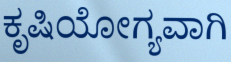
ಕೃಷಿಯೋಗ್ಯವಾಗಿ